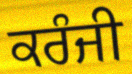
ਕਰੰਜੀ